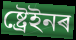
ষ্ট্ৰেইনৰ